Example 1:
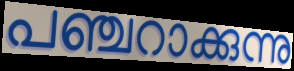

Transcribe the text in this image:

പഞ്ചറാക്കുന്നു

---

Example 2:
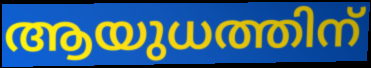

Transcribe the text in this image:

ആയുധത്തിന്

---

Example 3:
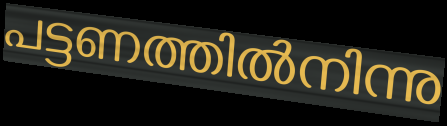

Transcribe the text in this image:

പട്ടണത്തിൽനിന്നു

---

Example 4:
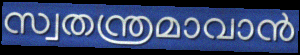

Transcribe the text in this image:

സ്വതന്ത്രമാവാൻ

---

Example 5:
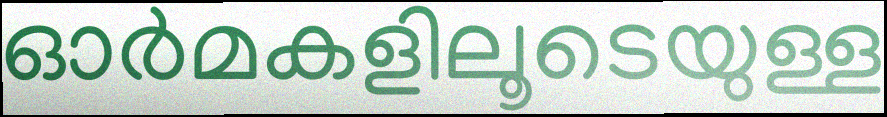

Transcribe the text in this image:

ഓർമകളിലൂടെയുള്ള